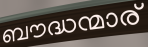
ബൗദ്ധന്മാര്